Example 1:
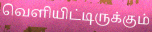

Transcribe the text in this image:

வெளியிட்டிருக்கும்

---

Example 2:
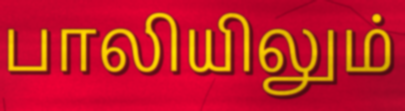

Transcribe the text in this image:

பாலியிலும்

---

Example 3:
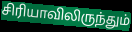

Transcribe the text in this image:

சிரியாவிலிருந்தும்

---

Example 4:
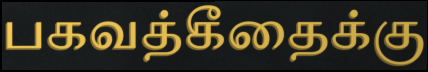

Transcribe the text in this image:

பகவத்கீதைக்கு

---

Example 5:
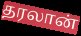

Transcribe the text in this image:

தரலான்